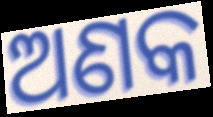
ଅଣକ